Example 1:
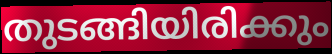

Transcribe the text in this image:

തുടങ്ങിയിരിക്കും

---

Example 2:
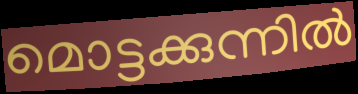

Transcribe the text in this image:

മൊട്ടക്കുന്നിൽ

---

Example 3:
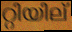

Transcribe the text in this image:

റ്റിയില്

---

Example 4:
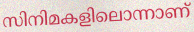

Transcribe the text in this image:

സിനിമകളിലൊന്നാണ്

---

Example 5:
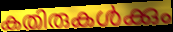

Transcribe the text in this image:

കതിരുകൾക്കും